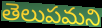
తెలుపమని